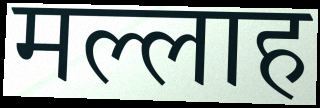
मल्लाह